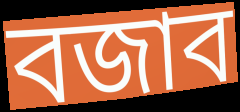
বজাব